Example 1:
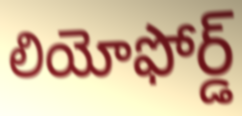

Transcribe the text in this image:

లియోఫోర్డ్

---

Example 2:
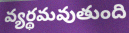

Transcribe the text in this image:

వ్యర్థమవుతుంది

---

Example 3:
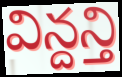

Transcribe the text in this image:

విన్దన్తి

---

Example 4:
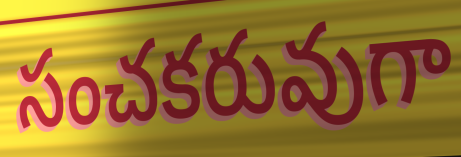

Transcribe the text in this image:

సంచకరువుగా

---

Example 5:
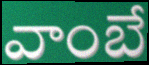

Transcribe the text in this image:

వాంబే